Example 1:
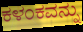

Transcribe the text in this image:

ಕಳಂಕವನ್ನು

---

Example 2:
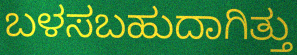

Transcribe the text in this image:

ಬಳಸಬಹುದಾಗಿತ್ತು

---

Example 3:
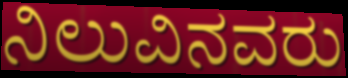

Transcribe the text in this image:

ನಿಲುವಿನವರು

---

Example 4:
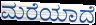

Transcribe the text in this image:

ಮರೆಯಾದೆ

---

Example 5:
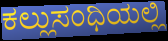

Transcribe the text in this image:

ಕಲ್ಲುಸಂಧಿಯಲ್ಲಿ